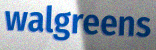
walgreens